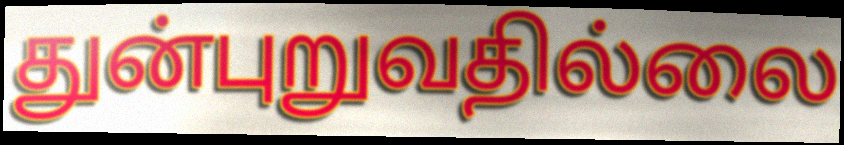
துன்புறுவதில்லை